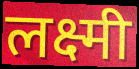
लक्ष्मी